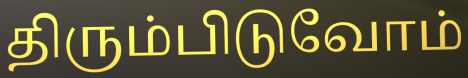
திரும்பிடுவோம்